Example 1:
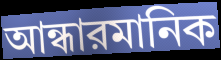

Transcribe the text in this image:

আন্ধারমানিক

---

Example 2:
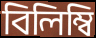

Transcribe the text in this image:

বিলিম্বি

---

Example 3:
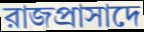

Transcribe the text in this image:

রাজপ্রাসাদে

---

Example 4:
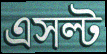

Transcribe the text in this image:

এসল্ট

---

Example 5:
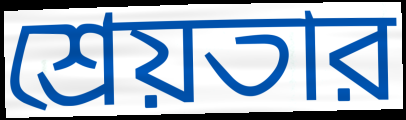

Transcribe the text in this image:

শ্রেয়তার